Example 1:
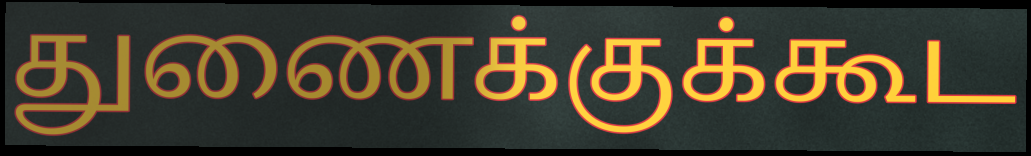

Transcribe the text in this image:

துணைக்குக்கூட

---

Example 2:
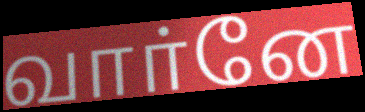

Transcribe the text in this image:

வார்னே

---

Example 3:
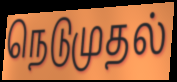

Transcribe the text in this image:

நெடுமுதல்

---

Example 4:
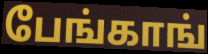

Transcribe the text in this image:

பேங்காங்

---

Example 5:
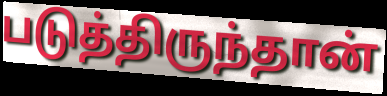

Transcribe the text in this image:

படுத்திருந்தான்